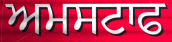
ਅਮਸਟਾਫ